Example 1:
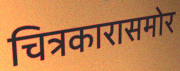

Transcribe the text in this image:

चित्रकारासमोर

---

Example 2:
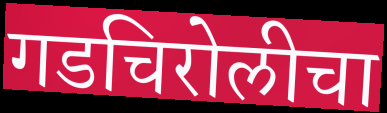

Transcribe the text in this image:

गडचिरोलीचा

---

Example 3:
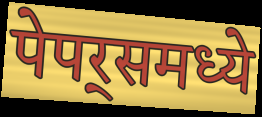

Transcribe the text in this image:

पेपर्समध्ये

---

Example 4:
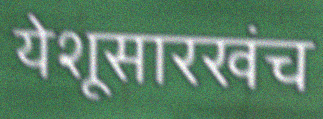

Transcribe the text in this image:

येशूसारखंच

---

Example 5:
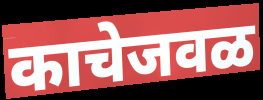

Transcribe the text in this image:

काचेजवळ